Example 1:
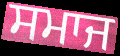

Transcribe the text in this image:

ਸਮਾਜ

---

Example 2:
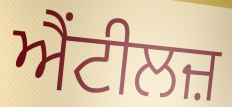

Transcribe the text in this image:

ਐਂਟੀਲਜ਼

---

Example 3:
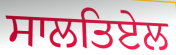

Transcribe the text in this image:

ਸਾਲਤਿਏਲ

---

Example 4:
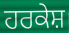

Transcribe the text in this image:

ਹਰਕੇਸ਼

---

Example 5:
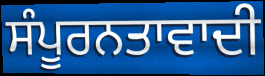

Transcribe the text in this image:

ਸੰਪੂਰਨਤਾਵਾਦੀ